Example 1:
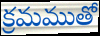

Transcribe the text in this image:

క్రమముతో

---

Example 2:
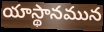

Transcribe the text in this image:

యాస్థానమున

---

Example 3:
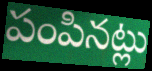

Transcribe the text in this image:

పంపినట్లు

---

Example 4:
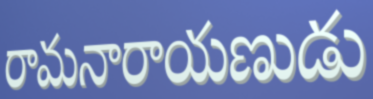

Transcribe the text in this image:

రామనారాయణుడు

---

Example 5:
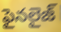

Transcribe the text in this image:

ఫైనలైజ్